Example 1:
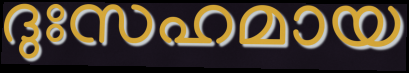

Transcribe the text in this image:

ദുഃസഹമായ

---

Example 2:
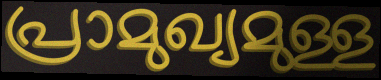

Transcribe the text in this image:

പ്രാമുഖ്യമുള്ള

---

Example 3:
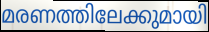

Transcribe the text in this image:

മരണത്തിലേക്കുമായി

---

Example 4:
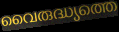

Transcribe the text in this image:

വൈരുദ്ധ്യത്തെ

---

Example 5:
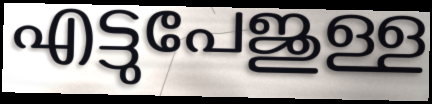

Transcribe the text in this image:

എട്ടുപേജുള്ള